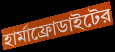
হার্মাফ্রোডাইটের